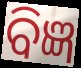
ବିଜ୍ଞ